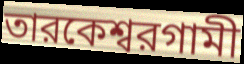
তারকেশ্বরগামী